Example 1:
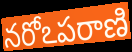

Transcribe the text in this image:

నరోఽపరాణి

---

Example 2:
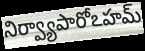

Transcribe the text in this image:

నిర్వ్యాపారోఽహమ్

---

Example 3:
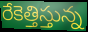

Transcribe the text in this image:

రేకెత్తిస్తున్న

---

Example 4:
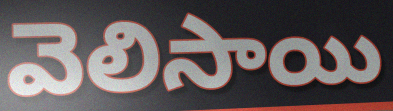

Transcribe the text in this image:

వెలిసాయి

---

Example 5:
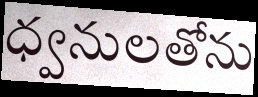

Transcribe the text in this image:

ధ్వనులతోను